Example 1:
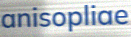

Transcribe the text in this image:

anisopliae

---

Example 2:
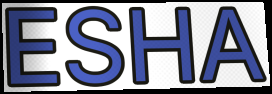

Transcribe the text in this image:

ESHA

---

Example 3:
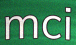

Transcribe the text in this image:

mci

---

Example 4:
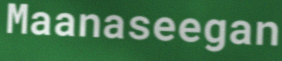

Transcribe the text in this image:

Maanaseegan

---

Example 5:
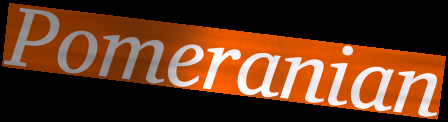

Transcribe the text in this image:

Pomeranian